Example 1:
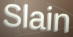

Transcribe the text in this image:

Slain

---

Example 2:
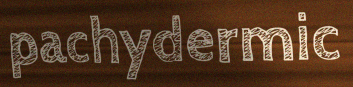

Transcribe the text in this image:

pachydermic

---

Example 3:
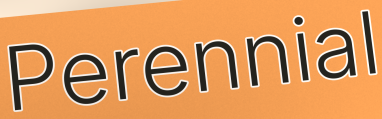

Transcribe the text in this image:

Perennial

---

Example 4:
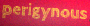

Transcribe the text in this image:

perigynous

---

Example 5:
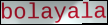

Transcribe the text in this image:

bolayala